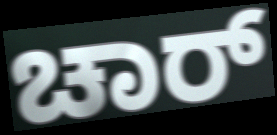
ಚಾರ್